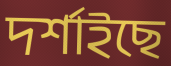
দৰ্শাইছে